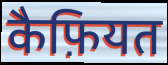
कैफ़ियत